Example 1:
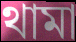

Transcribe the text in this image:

থামা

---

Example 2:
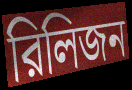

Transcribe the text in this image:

রিলিজন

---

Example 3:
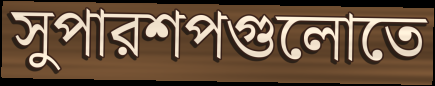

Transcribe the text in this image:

সুপারশপগুলোতে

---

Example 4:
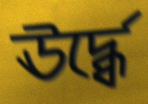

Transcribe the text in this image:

ঊর্দ্ধ্বে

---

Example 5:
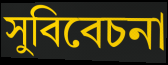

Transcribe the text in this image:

সুবিবেচনা